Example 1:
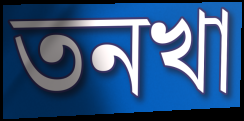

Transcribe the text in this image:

তনখা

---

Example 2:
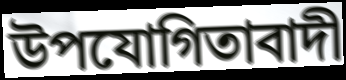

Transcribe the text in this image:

উপযোগিতাবাদী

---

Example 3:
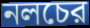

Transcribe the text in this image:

নলচের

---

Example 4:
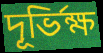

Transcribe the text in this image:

দূর্ভিক্ষ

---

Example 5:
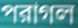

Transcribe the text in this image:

পরাগল